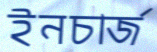
ইনচার্জ